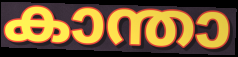
കാന്താ